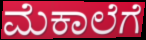
ಮೆಕಾಲೆಗೆ